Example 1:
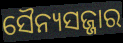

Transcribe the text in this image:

ସୈନ୍ୟସଜ୍ଜାର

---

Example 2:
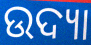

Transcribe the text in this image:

ଉଦ୍ୟା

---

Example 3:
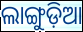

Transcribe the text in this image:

ଲାଙ୍ଗୁଡ଼ିଆ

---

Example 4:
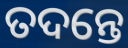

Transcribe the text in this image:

ତଦନ୍ତେ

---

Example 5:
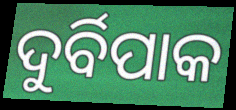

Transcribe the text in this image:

ଦୁର୍ବିପାକ